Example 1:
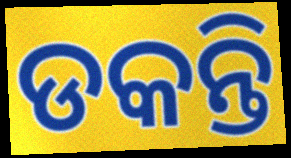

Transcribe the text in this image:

ଡକନ୍ତି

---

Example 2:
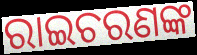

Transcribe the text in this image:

ରାଇଚରଣଙ୍କ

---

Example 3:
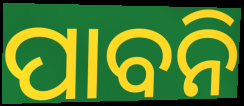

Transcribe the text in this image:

ପାବନି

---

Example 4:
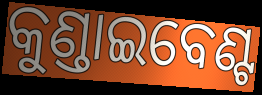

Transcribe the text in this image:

କୁଣ୍ଡାଇବେଣ୍ଟ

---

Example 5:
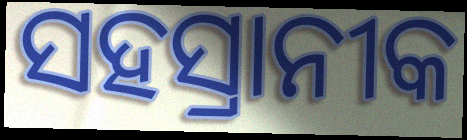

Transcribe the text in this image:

ସହସ୍ରାନୀକ